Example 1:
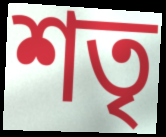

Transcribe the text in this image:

শতৃ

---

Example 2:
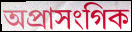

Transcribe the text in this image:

অপ্ৰাসংগিক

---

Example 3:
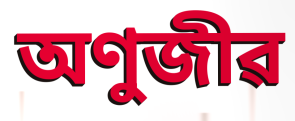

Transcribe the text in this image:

অণুজীৱ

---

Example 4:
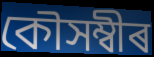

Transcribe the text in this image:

কৌসম্বীৰ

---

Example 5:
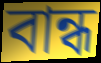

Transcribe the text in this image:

বান্ধ